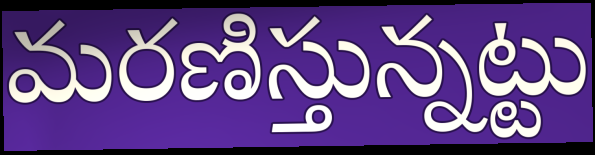
మరణిస్తున్నట్టు